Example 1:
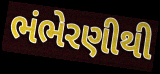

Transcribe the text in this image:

ભંભેરણીથી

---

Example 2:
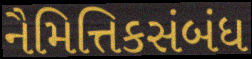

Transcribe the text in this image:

નૈમિત્તિકસંબંધ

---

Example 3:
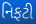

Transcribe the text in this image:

નિફટી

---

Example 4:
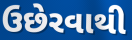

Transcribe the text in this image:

ઉછેરવાથી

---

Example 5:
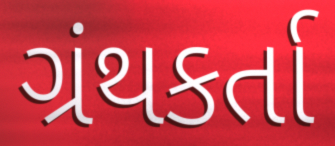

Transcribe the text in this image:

ગ્રંથકર્તા